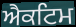
ਐਕਟਿਮ